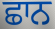
ਛਾਨ